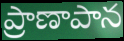
ప్రాణాపాన